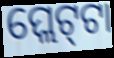
ପ୍ଲେଟ୍‍ଟା